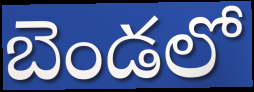
బెండలో